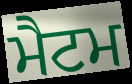
ਮੈਟਮ